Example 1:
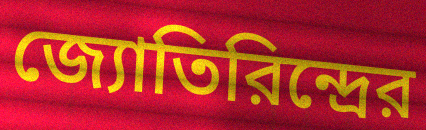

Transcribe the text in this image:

জ্যোতিরিন্দ্রের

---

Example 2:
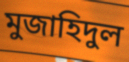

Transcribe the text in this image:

মুজাহিদুল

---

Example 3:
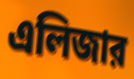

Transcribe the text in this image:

এলিজার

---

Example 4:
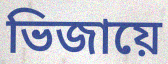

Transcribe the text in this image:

ভিজায়ে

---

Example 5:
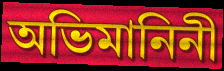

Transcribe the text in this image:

অভিমানিনী